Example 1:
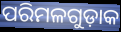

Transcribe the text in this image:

ପରିମଳଗୁଡ଼ାକ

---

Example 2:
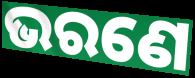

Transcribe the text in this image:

ଭରଣେ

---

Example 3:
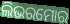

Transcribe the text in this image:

ଲିଭରମୋର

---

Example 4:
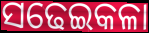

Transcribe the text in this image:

ସଢେଇକଳା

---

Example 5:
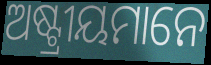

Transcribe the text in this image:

ଅଷ୍ଟ୍ରୀୟମାନେ